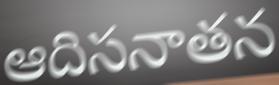
ఆదిసనాతన